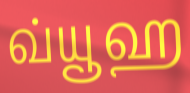
வ்யூஹ